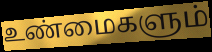
உண்மைகளும்